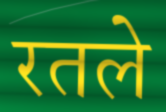
रतले